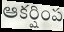
ఆకర్షింప